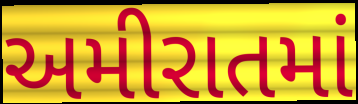
અમીરાતમાં